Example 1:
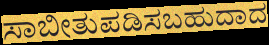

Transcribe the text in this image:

ಸಾಬೀತುಪಡಿಸಬಹುದಾದ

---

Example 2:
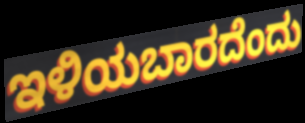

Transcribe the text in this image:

ಇಳಿಯಬಾರದೆಂದು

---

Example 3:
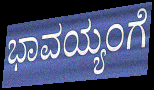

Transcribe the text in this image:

ಭಾವಯ್ಯಂಗೆ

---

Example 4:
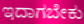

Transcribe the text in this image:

ಇದಾಗಬೇಕು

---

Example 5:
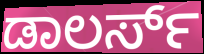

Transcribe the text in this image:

ಡಾಲರ್ಸ್